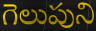
గెలుపుని